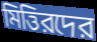
মিত্তিরদের